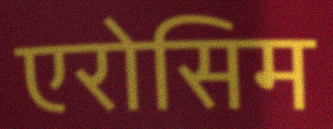
एरोसिम